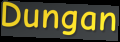
Dungan